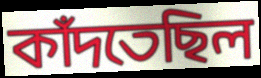
কাঁদতেছিল